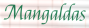
Mangaldas